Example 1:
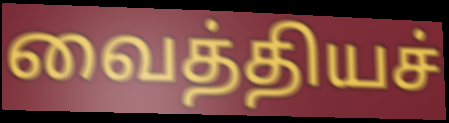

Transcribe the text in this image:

வைத்தியச்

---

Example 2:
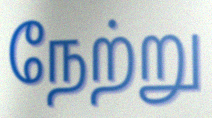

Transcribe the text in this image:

நேற்று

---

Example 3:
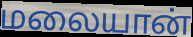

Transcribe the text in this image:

மலையான்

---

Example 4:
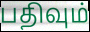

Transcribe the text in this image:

பதிவும்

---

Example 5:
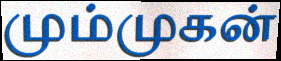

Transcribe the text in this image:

மும்முகன்